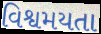
વિશ્વમયતા